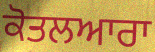
ਕੋਤਲਆਰਾ